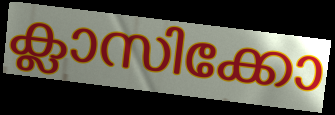
ക്ലാസിക്കോ